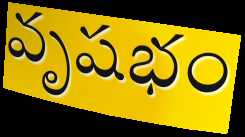
వృషభం